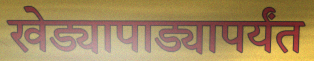
खेड्यापाड्यापर्यंत